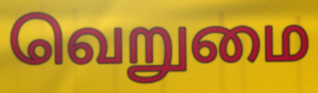
வெறுமை